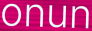
onun